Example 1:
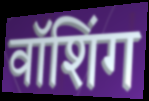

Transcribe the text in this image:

वॉशिंग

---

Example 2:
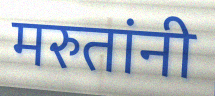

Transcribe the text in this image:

मरुतांनी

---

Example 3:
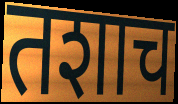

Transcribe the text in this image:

तशाच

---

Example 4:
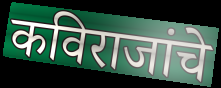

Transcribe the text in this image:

कविराजांचे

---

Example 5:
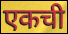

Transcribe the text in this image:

एकची